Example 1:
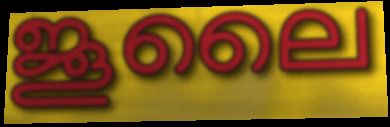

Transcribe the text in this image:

ജൂലൈ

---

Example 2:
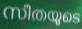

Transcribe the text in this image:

സീതയുടെ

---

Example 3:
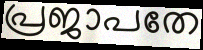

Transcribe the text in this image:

പ്രജാപതേ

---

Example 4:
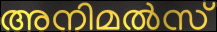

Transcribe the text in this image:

അനിമൽസ്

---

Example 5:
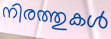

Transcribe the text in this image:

നിരത്തുകൾ